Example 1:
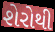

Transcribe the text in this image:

શેરોથી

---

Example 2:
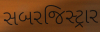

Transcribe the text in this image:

સબરજિસ્ટ્રાર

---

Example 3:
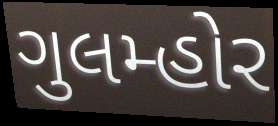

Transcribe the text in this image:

ગુલમ્હોર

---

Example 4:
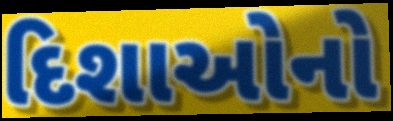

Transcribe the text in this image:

દિશાઓનો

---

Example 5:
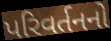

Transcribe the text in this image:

પરિવર્તનનો